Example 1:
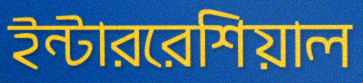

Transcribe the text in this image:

ইন্টাররেশিয়াল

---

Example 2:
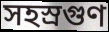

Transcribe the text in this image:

সহস্রগুণ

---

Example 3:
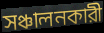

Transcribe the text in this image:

সঞ্চালনকারী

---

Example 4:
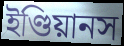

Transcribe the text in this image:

ইণ্ডিয়ানস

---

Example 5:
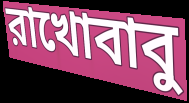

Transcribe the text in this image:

রাখোবাবু